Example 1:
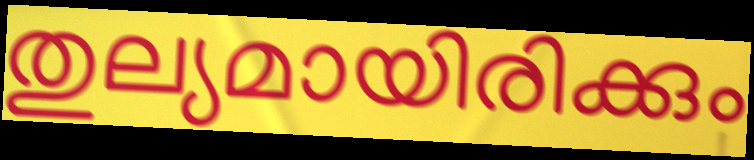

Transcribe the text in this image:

തുല്യമായിരിക്കും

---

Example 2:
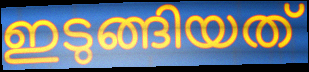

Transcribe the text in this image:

ഇടുങ്ങിയത്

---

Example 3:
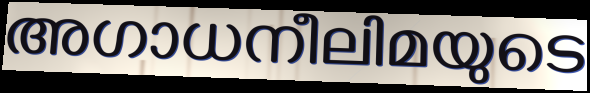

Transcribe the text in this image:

അഗാധനീലിമയുടെ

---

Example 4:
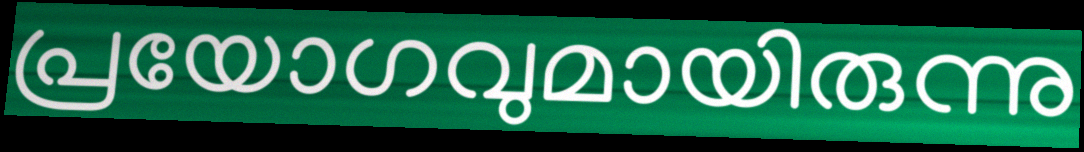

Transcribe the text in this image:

പ്രയോഗവുമായിരുന്നു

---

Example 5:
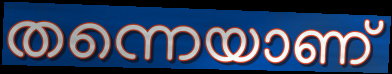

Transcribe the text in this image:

തന്നെയാണ്